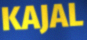
KAJAL